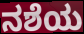
ನಶೆಯ